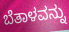
ಬೆತಾಳವನ್ನು